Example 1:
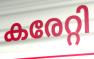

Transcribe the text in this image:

കരേറ്റി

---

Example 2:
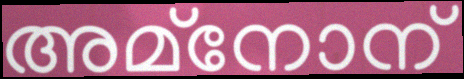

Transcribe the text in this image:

അമ്നോന്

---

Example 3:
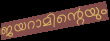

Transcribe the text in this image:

ജയറാമിന്റെയും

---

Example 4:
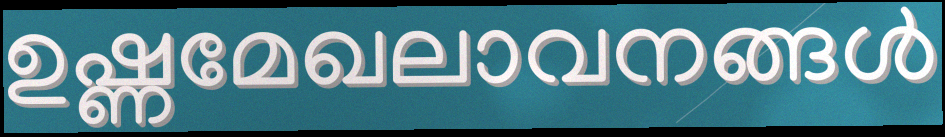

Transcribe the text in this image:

ഉഷ്ണമേഖലാവനങ്ങൾ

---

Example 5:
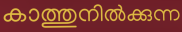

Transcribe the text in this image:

കാത്തുനിൽക്കുന്ന